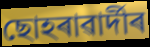
ছোহৰাৱাৰ্দীৰ